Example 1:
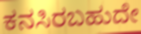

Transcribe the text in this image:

ಕನಸಿರಬಹುದೇ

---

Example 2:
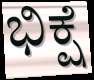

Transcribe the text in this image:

ಭಿಕ್ಷೆ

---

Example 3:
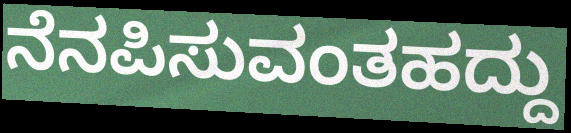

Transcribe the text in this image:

ನೆನಪಿಸುವಂತಹದ್ದು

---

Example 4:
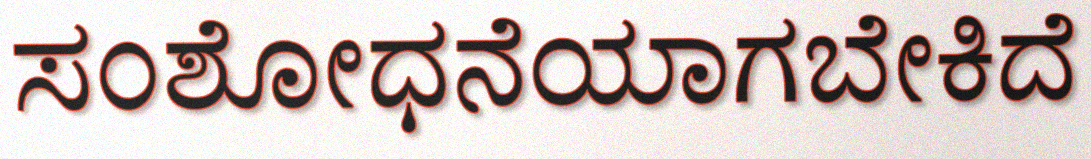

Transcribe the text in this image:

ಸಂಶೋಧನೆಯಾಗಬೇಕಿದೆ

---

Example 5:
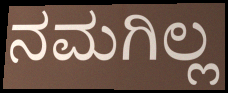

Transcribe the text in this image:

ನಮಗಿಲ್ಲ